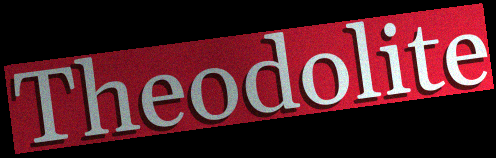
Theodolite